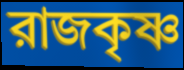
রাজকৃষ্ণ